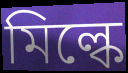
মিল্কে